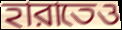
হারাতেও